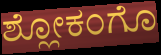
ಶ್ಲೋಕಂಗೊ